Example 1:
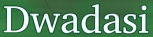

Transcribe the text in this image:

Dwadasi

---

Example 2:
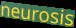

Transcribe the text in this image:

neurosis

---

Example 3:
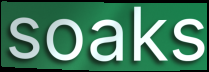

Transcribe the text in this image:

soaks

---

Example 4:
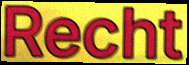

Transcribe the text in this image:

Recht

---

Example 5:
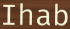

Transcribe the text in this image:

Ihab